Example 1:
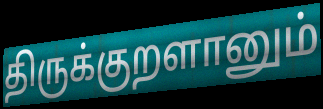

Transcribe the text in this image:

திருக்குறளானும்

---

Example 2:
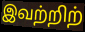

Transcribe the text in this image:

இவற்றிற்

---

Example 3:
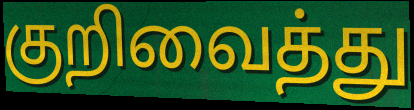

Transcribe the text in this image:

குறிவைத்து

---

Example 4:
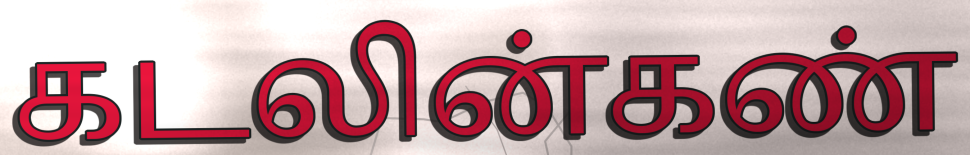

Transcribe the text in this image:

கடலின்கண்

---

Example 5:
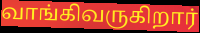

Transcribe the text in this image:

வாங்கிவருகிறார்